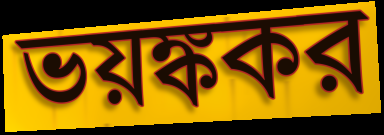
ভয়ঙ্ককর